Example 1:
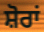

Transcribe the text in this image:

ਸ਼ੋਰਾਂ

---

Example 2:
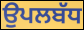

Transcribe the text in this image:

ਉਪਲਬੱਧ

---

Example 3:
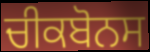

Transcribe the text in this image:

ਚੀਕਬੋਨਸ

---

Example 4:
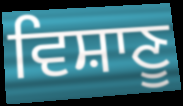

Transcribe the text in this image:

ਵਿਸ਼ਾਣੂ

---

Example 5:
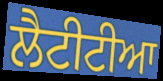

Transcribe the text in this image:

ਲੈਟੀਟੀਆ